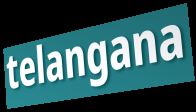
telangana